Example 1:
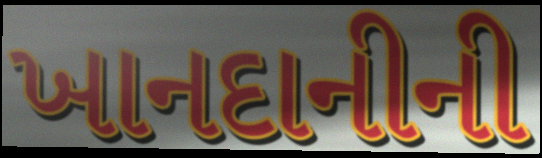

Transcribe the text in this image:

ખાનદાનીની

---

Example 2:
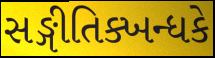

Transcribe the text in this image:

સઙ્ગીતિક્ખન્ધકે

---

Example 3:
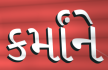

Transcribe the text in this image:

કર્માંને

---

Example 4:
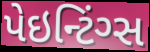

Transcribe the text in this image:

પેઇન્ટિંગ્સ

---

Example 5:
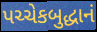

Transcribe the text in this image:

પચ્ચેકબુદ્ધાનં